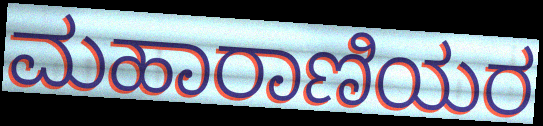
ಮಹಾರಾಣಿಯರ